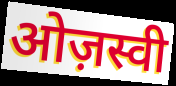
ओज़स्वी